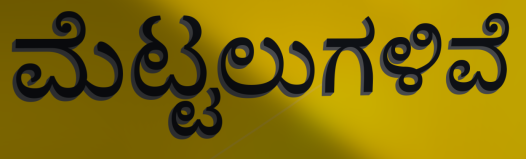
ಮೆಟ್ಟಲುಗಳಿವೆ